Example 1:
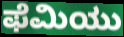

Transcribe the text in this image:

ಫೆಮಿಯು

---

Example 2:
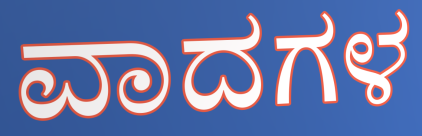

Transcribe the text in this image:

ವಾದಗಳ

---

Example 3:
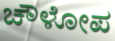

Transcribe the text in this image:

ಚೌಳೋಪ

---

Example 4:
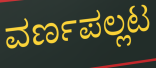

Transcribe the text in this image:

ವರ್ಣಪಲ್ಲಟ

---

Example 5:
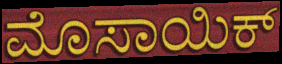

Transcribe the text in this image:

ಮೊಸಾಯಿಕ್